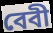
বেবী